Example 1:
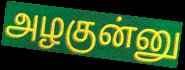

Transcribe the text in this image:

அழகுன்னு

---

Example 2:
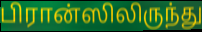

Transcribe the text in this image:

பிரான்ஸிலிருந்து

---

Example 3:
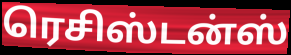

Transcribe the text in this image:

ரெசிஸ்டன்ஸ்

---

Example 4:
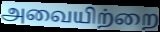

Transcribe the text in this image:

அவையிற்றை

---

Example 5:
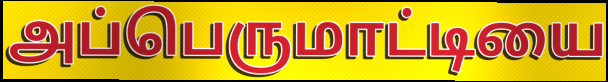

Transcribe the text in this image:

அப்பெருமாட்டியை